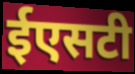
ईएसटी